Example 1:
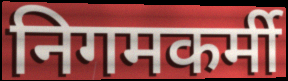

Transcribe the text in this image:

निगमकर्मी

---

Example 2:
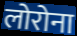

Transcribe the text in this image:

लोरोना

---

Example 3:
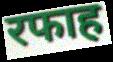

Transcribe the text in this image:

रफाह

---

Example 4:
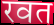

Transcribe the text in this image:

रवत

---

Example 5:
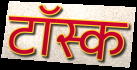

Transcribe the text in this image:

टॉस्‍क